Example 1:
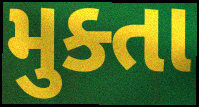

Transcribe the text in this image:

મુક્તા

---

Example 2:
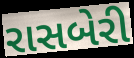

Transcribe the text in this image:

રાસબેરી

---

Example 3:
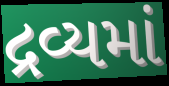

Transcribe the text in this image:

દ્રવ્યમાં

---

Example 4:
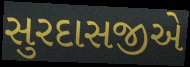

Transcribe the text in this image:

સુરદાસજીએ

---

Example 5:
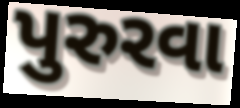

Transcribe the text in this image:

પુરુરવા